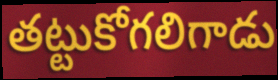
తట్టుకోగలిగాడు